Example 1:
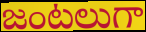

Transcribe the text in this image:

జంటలుగా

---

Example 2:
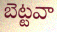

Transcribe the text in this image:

బెట్టవా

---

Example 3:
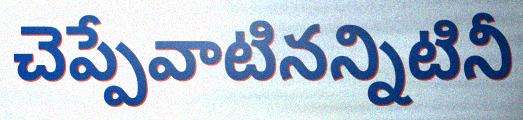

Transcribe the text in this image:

చెప్పేవాటినన్నిటినీ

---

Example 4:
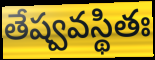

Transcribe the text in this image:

తేష్వవస్థితః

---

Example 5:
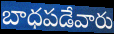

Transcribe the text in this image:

బాధపడేవారు